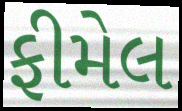
ફીમેલ